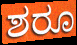
ಶರೂ